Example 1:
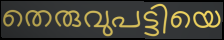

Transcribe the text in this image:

തെരുവുപട്ടിയെ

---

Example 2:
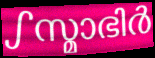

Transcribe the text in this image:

ഽസ്മാഭിർ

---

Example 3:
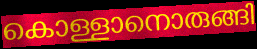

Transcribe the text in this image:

കൊള്ളാനൊരുങ്ങി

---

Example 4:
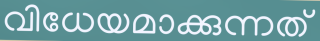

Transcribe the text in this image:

വിധേയമാക്കുന്നത്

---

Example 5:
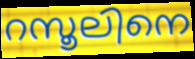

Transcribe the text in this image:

റസൂലിനെ